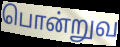
பொன்றுவ